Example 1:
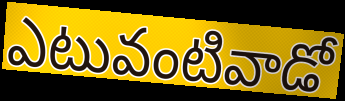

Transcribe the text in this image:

ఎటువంటివాడో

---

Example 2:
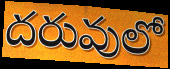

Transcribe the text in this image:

దరువులో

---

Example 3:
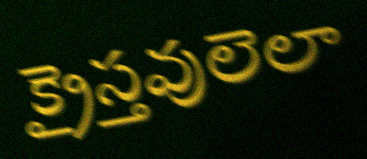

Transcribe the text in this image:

క్రైస్తవులెలా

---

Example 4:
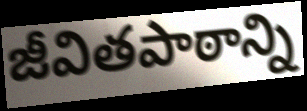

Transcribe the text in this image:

జీవితపాఠాన్ని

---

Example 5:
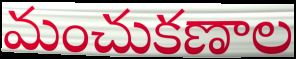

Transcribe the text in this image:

మంచుకణాల